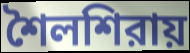
শৈলশিরায়